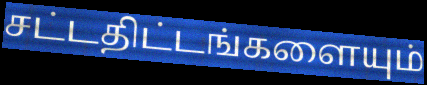
சட்டதிட்டங்களையும்